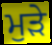
ਮੁੜੇ